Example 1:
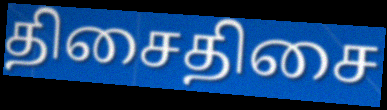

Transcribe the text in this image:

திசைதிசை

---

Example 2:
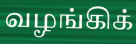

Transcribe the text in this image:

வழங்கிக்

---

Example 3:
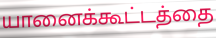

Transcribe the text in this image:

யானைக்கூட்டத்தை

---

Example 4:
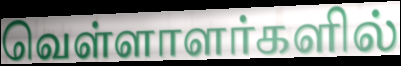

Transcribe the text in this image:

வெள்ளாளர்களில்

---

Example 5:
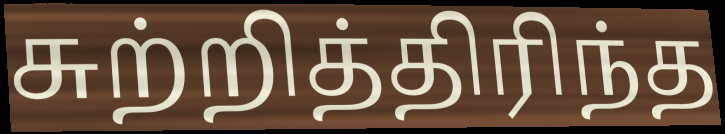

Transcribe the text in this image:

சுற்றித்திரிந்த